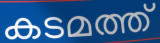
കടമത്ത്